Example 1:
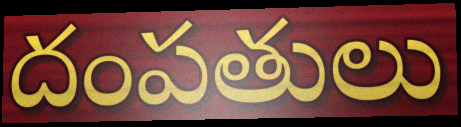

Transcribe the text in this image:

దంపతులు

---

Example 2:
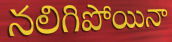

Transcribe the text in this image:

నలిగిపోయినా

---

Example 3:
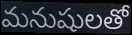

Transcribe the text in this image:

మనుషులతో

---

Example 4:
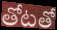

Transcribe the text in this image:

తోటతో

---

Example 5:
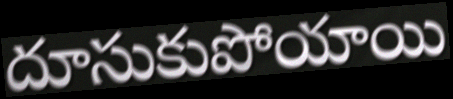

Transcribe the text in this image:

దూసుకుపోయాయి